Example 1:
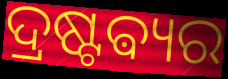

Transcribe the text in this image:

ଦ୍ରଷ୍ଟଵ୍ୟର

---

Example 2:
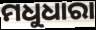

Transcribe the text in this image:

ମଧୁଧାରା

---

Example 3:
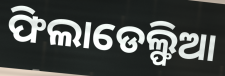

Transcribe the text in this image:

ଫିଲାଡେଲ୍ଫିଆ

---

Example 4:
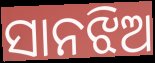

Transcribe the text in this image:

ସାନଝିଅ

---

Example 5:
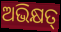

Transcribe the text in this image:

ଅଭିକ୍ଷତ୍